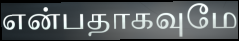
என்பதாகவுமே